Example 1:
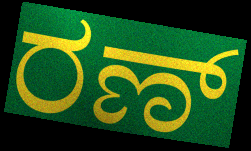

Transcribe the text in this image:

ರಣ್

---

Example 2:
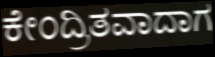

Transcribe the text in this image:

ಕೇಂದ್ರಿತವಾದಾಗ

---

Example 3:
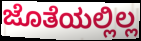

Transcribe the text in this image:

ಜೊತೆಯಲ್ಲಿಲ್ಲ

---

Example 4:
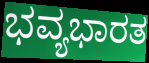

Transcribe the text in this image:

ಭವ್ಯಭಾರತ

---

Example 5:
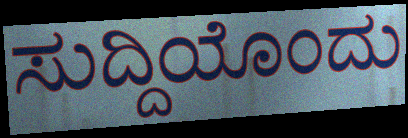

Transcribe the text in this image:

ಸುದ್ದಿಯೊಂದು